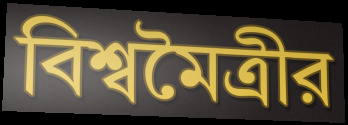
বিশ্বমৈত্রীর